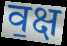
व॒क्ष